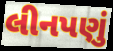
લીનપણું